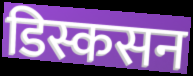
डिस्कसन